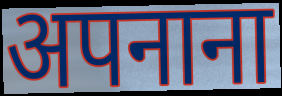
अपनाना